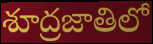
శూద్రజాతిలో